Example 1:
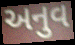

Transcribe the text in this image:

અનુવ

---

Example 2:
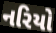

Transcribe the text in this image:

નરિયો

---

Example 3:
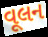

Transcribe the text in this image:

વૂલન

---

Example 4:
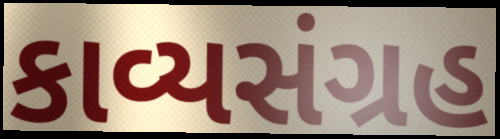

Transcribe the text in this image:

કાવ્યસંગ્રહ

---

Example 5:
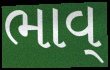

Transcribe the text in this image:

ભાવ્